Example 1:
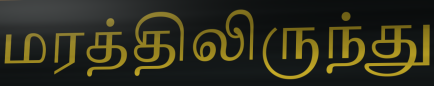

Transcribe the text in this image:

மரத்திலிருந்து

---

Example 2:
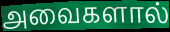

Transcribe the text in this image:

அவைகளால்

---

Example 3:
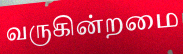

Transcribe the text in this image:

வருகின்றமை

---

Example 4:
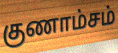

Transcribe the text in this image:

குணாம்சம்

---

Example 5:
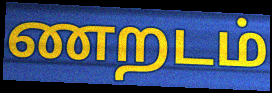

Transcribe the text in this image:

ணறடம்